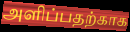
அளிப்பதற்காக